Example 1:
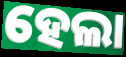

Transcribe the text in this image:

ହେଲା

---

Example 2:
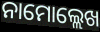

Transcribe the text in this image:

ନାମୋଲ୍ଲେଖ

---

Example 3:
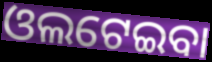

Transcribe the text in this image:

ଓଲଟେଇବା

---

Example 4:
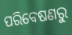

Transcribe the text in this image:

ପରିବେଷଣରୁ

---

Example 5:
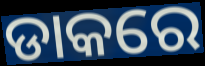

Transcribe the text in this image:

ଡାକରେ